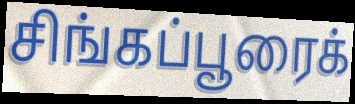
சிங்கப்பூரைக்